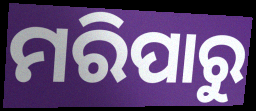
ମରିପାରୁ